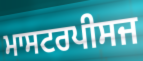
ਮਾਸਟਰਪੀਸਜ